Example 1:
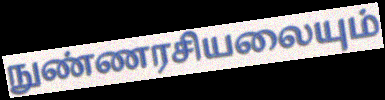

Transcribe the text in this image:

நுண்ணரசியலையும்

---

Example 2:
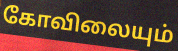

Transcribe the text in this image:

கோவிலையும்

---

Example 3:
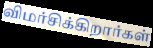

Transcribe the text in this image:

விமர்சிக்கிறார்கள்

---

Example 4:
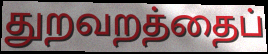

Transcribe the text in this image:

துறவறத்தைப்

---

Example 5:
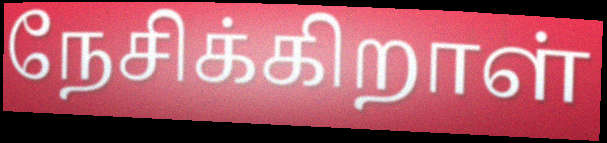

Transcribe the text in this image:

நேசிக்கிறாள்